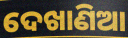
ଦେଖାଣିଆ